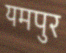
यमपुर